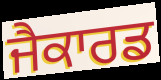
ਜੈਕਾਰਡ